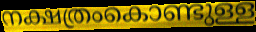
നക്ഷത്രംകൊണ്ടുള്ള